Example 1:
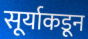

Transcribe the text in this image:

सूर्याकडून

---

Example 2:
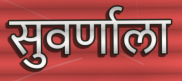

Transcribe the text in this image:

सुवर्णाला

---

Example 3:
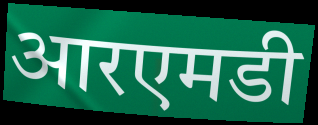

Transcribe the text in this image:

आरएमडी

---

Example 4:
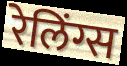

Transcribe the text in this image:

रेलिंग्स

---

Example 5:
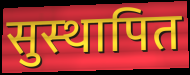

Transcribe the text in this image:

सुस्थापित